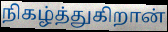
நிகழ்த்துகிறான்